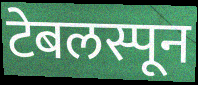
टेबलस्पून